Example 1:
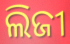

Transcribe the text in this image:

ଲିଜୀ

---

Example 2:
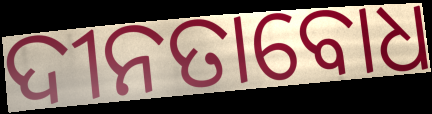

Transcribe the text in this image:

ଦୀନତାବୋଧ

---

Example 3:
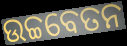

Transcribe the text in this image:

ଉଚ୍ଚବେତନ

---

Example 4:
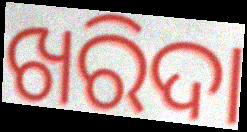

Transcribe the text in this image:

ଖରିଦା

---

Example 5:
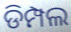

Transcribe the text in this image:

ଡିମ୍ପଲ